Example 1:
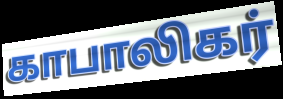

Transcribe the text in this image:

காபாலிகர்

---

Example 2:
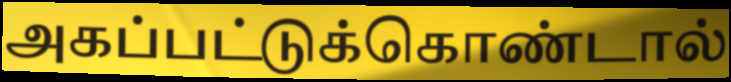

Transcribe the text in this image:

அகப்பட்டுக்கொண்டால்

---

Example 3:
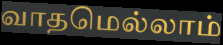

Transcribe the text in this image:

வாதமெல்லாம்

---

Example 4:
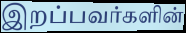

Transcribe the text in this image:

இறப்பவர்களின்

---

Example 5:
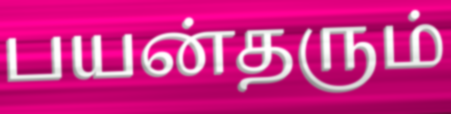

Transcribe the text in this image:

பயன்தரும்